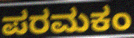
ಪರಮಕಂ